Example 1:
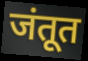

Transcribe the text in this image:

जंतूत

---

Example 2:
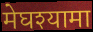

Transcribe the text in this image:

मेघश्यामा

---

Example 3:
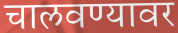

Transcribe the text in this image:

चालवण्यावर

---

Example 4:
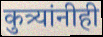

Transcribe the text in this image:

कुत्र्यांनीही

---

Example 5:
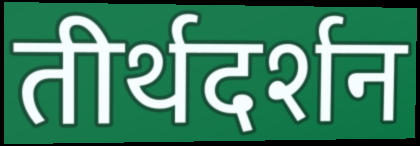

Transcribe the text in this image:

तीर्थदर्शन